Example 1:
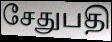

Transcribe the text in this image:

சேதுபதி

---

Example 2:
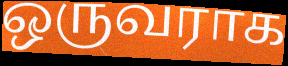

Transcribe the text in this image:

ஒருவராக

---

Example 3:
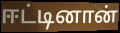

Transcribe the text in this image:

ஈட்டினான்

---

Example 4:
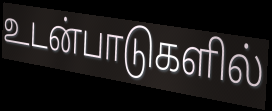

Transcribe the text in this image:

உடன்பாடுகளில்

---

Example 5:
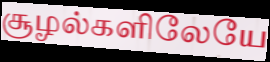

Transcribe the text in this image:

சூழல்களிலேயே